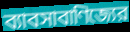
ব্যাবসাবাণিজ্যের